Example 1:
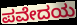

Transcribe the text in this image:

ಪವೇದಯ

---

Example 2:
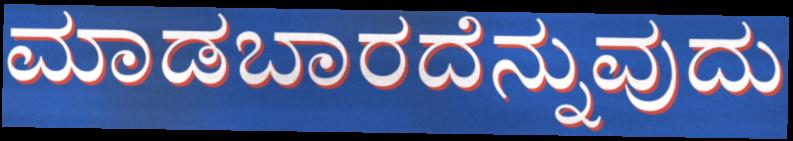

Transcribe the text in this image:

ಮಾಡಬಾರದೆನ್ನುವುದು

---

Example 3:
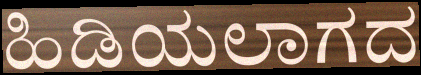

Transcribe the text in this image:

ಹಿಡಿಯಲಾಗದ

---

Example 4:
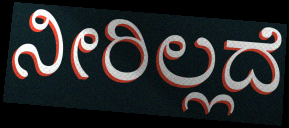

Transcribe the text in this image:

ನೀರಿಲ್ಲದೆ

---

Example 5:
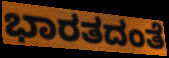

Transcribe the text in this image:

ಭಾರತದಂತೆ